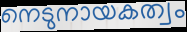
നെടുനായകത്വം